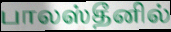
பாலஸ்தீனில்